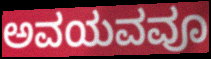
ಅವಯವವೂ